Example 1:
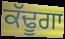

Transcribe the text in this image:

ਕੱਢੂਗਾ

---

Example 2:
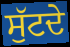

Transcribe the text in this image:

ਸੁੱਟਦੇ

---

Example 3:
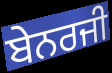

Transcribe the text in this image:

ਬੇਨਰਜੀ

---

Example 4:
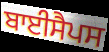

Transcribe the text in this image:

ਬਾਈਸੈਪਸ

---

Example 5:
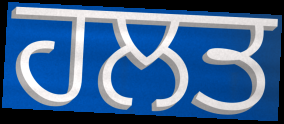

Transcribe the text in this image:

ਹਲਤ